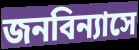
জনবিন্যাসে